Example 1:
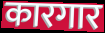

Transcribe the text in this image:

कारगार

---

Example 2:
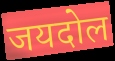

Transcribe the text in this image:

जयदोल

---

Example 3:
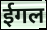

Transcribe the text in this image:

ईगल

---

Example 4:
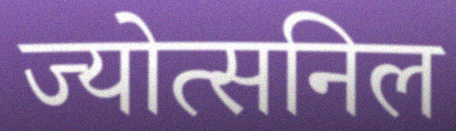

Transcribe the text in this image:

ज्योत्सनिल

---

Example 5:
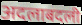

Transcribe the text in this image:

अदलाबदली